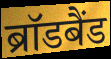
ब्रॉडबैंड